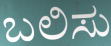
ಬಲಿಸು